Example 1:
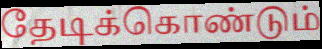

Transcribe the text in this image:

தேடிக்கொண்டும்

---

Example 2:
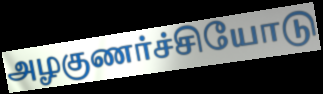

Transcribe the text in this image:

அழகுணர்ச்சியோடு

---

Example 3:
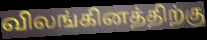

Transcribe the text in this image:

விலங்கினத்திற்கு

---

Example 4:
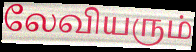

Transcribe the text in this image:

லேவியரும்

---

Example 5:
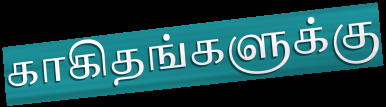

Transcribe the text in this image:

காகிதங்களுக்கு